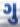
ગુ